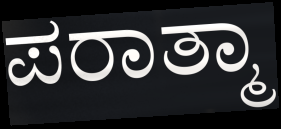
ಪರಾತ್ಮಾ